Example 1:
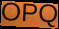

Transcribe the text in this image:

OPQ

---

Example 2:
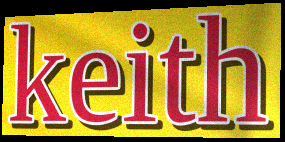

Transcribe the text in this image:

keith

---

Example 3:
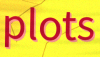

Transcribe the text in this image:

plots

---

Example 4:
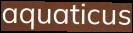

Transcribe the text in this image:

aquaticus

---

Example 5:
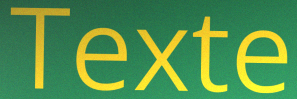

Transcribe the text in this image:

Texte